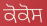
ਕੋਕੋਸ